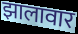
झालावार